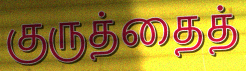
குருத்தைத்